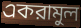
একরামুল